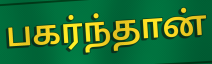
பகர்ந்தான்